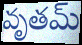
వృతమ్